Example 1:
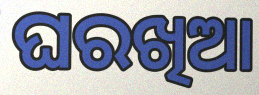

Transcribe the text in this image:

ଘରଖିଆ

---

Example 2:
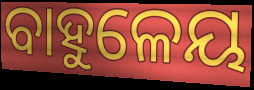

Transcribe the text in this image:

ବାହୁଳେୟ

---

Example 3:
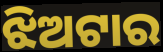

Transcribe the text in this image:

ଝିଅଟାର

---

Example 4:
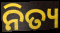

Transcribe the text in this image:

ନିତ୍ୟ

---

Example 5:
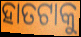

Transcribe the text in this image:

ହାତଟାକୁ